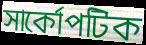
সার্কোপটিক